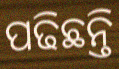
ପଢିଛନ୍ତି